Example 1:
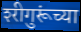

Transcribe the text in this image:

श्रीगुरूंच्या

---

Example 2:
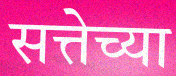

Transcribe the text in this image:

सत्तेच्या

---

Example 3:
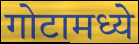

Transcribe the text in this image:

गोटामध्ये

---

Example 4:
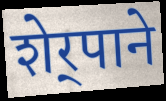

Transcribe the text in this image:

शेर्पाने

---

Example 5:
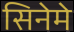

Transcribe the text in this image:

सिनेमे